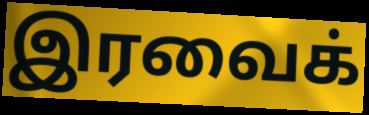
இரவைக்